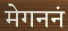
मेगननं